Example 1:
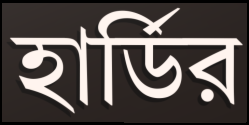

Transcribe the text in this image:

হার্ডির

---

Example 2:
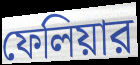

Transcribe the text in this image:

ফেলিয়ার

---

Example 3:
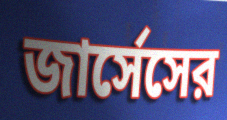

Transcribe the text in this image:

জার্সেসের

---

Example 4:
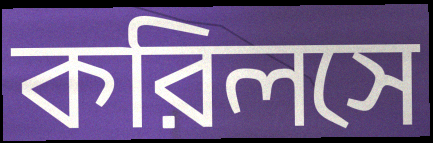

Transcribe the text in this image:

করিলসে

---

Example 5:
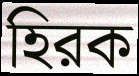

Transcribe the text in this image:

হিরক